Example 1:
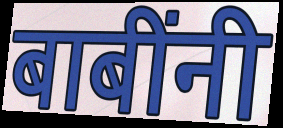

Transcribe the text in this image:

बाबींनी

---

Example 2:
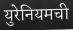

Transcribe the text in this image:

युरेनियमची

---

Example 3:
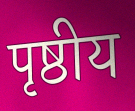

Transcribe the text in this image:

पृष्ठीय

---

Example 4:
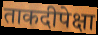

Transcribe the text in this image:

ताकदीपेक्षा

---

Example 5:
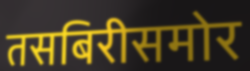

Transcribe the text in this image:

तसबिरीसमोर